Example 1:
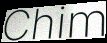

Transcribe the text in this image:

Chim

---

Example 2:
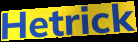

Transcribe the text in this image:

Hetrick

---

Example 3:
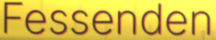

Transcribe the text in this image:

Fessenden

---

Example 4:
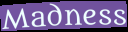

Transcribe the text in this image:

Madness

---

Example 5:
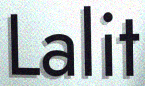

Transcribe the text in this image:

Lalit